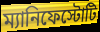
ম্যানিফেস্টোটি